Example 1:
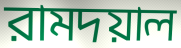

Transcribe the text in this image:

রামদয়াল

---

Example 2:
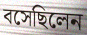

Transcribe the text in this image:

বসেছিলেন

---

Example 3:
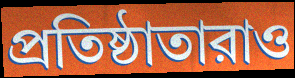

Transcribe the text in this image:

প্রতিষ্ঠাতারাও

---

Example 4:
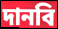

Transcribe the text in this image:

দানবি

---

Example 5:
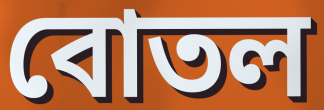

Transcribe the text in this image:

বোতল